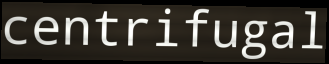
centrifugal